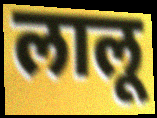
लालू